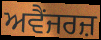
ਅਵੈਂਜਰਜ਼